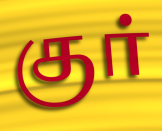
குர்